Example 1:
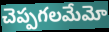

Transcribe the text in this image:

చెప్పగలమేమో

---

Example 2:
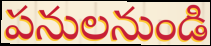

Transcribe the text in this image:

పనులనుండి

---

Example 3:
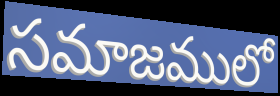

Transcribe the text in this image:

సమాజములో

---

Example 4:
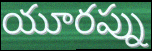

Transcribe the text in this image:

యూరప్ను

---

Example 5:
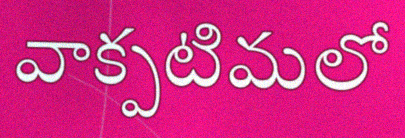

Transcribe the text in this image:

వాక్పటిమలో